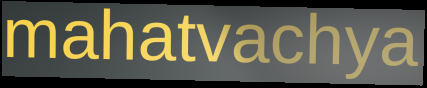
mahatvachya